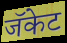
जॅकेट